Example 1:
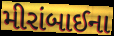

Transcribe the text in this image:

મીરાંબાઈના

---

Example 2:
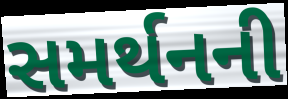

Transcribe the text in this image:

સમર્થનની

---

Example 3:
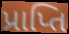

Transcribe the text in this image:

પ્રાપ્તિ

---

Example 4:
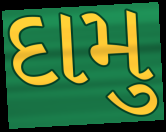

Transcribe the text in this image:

દામુ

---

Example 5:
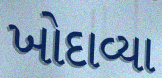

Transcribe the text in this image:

ખોદાવ્યા